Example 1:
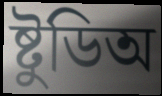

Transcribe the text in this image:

ষ্টুডিঅ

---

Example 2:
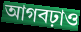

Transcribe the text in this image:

আগবঢ়াও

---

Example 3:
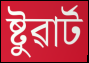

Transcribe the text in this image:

ষ্টুৱাৰ্ট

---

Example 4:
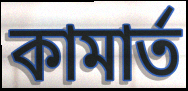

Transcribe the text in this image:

কামাৰ্ত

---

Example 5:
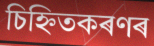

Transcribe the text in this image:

চিহ্নিতকৰণৰ